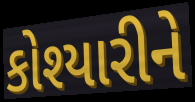
કોશ્યારીને